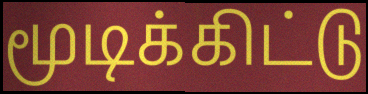
மூடிக்கிட்டு